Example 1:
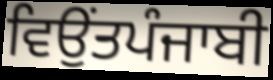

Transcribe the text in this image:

ਵਿਉਂਤਪੰਜਾਬੀ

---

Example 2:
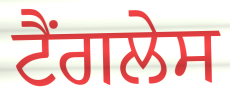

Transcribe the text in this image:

ਟੈਂਗਲੇਸ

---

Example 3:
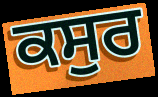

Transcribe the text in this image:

ਕਸੁਰ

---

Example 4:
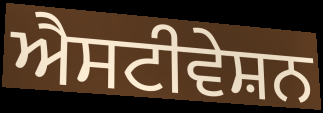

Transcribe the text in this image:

ਐਸਟੀਵੇਸ਼ਨ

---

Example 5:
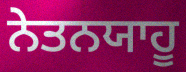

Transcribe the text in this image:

ਨੇਤਨਯਾਹੂ